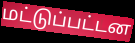
மட்டுப்பட்டன